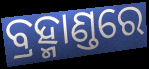
ବ୍ରହ୍ମାଣ୍ଡରେ